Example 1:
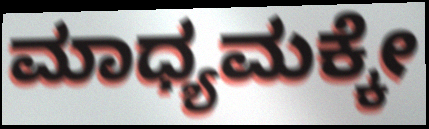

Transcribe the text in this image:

ಮಾಧ್ಯಮಕ್ಕೇ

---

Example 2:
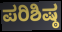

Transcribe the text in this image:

ಪರಿಶಿಷ್ಠ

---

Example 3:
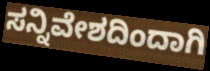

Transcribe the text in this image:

ಸನ್ನಿವೇಶದಿಂದಾಗಿ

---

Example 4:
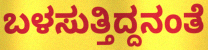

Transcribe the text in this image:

ಬಳಸುತ್ತಿದ್ದನಂತೆ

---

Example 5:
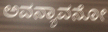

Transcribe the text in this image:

ಅವನ್ಯಾವನೋ